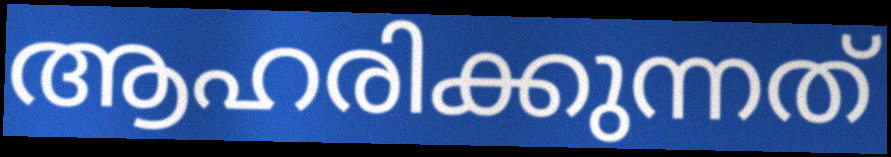
ആഹരിക്കുന്നത്